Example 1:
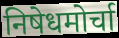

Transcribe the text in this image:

निषेधमोर्चा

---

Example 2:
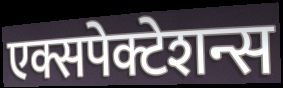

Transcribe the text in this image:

एक्सपेक्टेशन्स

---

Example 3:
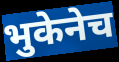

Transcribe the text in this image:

भुकेनेच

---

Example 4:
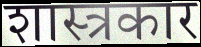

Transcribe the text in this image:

शास्त्रकार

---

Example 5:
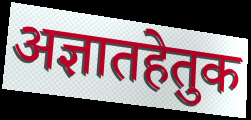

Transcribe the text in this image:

अज्ञातहेतुक